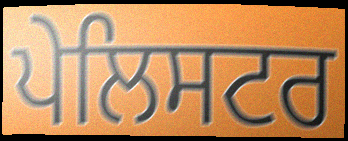
ਪੇਲਿਸਟਰ